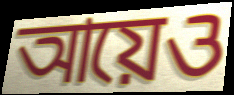
আয়েও